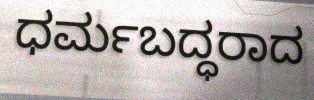
ಧರ್ಮಬದ್ಧರಾದ